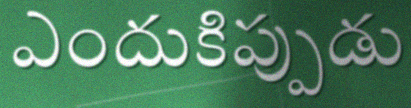
ఎందుకిప్పుడు